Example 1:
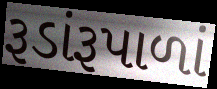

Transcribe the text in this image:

રૂડાંરૂપાળાં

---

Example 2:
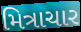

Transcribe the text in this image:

મિત્રાચાર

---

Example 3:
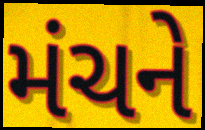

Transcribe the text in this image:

મંચને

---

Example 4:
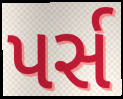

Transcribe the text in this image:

પર્સ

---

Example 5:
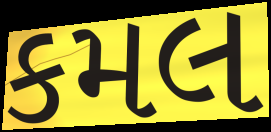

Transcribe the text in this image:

કમલ